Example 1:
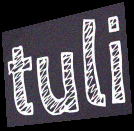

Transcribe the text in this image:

tuli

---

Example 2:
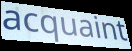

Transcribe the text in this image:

acquaint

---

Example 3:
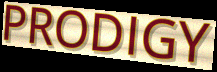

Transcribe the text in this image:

PRODIGY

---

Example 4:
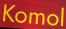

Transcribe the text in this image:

Komol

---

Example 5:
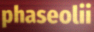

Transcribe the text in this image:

phaseolii